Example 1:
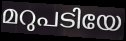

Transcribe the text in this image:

മറുപടിയേ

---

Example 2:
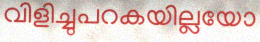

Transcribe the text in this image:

വിളിച്ചുപറകയില്ലയോ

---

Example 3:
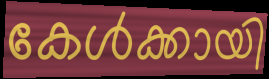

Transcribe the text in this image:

കേൾക്കായി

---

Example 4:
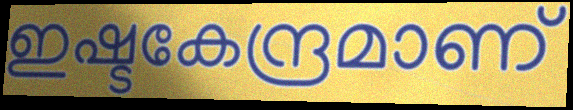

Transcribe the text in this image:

ഇഷ്ടകേന്ദ്രമാണ്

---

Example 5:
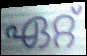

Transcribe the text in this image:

ഏറ്റ്